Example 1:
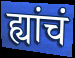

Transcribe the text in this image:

ह्यांचं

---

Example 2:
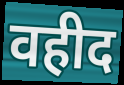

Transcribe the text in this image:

वहीद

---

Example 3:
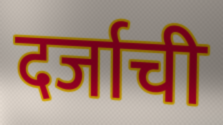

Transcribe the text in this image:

दर्जाची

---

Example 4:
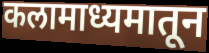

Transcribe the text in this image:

कलामाध्यमातून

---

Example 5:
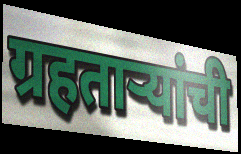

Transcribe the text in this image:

ग्रहताऱ्यांची